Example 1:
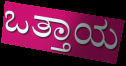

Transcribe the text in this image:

ಒತ್ತಾಯ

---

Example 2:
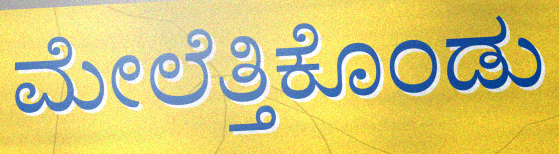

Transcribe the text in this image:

ಮೇಲೆತ್ತಿಕೊಂಡು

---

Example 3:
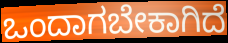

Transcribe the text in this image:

ಒಂದಾಗಬೇಕಾಗಿದೆ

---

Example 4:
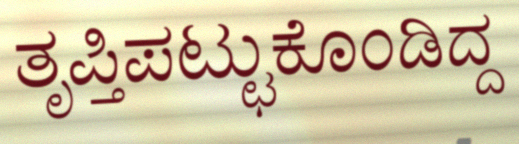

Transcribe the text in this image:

ತೃಪ್ತಿಪಟ್ಟುಕೊಂಡಿದ್ದ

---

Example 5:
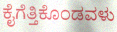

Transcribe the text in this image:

ಕೈಗೆತ್ತಿಕೊಂಡವಳು